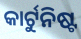
କାର୍ଟୁନିଷ୍ଟ